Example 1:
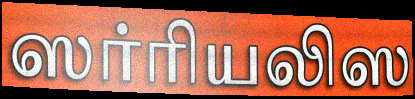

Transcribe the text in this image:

ஸர்ரியலிஸ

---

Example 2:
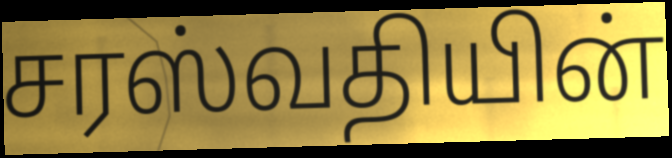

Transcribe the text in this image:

சரஸ்வதியின்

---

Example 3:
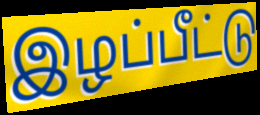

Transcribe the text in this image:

இழப்பீட்டு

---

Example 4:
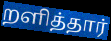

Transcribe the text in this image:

றளித்தார்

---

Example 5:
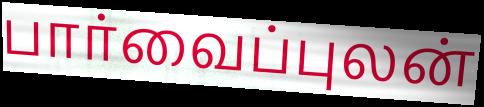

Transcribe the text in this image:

பார்வைப்புலன்